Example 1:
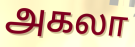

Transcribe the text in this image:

அகலா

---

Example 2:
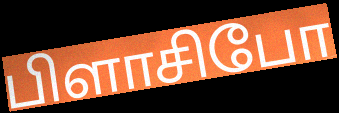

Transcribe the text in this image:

பிளாசிபோ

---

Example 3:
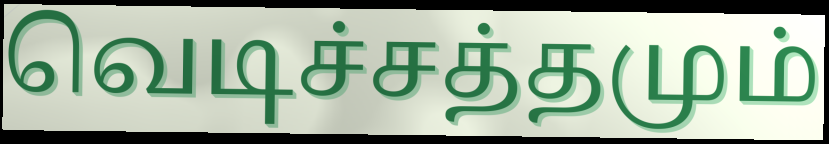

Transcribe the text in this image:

வெடிச்சத்தமும்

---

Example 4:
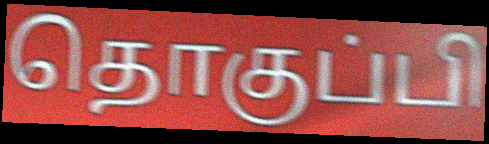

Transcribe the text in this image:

தொகுப்பி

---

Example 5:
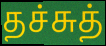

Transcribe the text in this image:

தச்சுத்